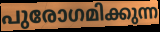
പുരോഗമിക്കുന്ന